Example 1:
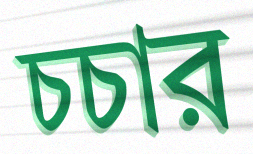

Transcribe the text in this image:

চচার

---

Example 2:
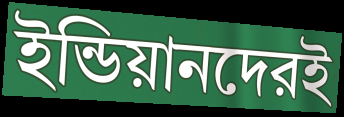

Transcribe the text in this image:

ইন্ডিয়ানদেরই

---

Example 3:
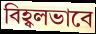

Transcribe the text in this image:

বিহ্বলভাবে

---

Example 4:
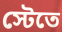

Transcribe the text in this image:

স্টেতে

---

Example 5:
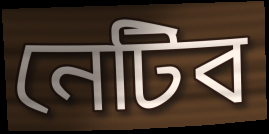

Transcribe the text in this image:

নেটিব